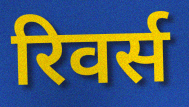
रिवर्स